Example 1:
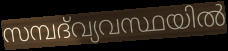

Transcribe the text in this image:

സമ്പദ്‌വ്യവസ്ഥയിൽ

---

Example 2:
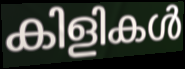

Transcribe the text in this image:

കിളികൾ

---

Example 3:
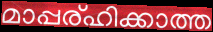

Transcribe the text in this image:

മാപ്പര്ഹിക്കാത്ത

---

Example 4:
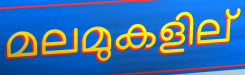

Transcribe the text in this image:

മലമുകളില്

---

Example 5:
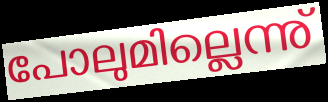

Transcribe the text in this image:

പോലുമില്ലെന്നു്